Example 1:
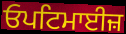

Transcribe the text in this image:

ਓਪਟਿਮਾਈਜ਼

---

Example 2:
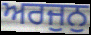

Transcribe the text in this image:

ਅਰਜੁਨੁ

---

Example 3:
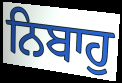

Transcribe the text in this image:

ਨਿਬਾਹੁ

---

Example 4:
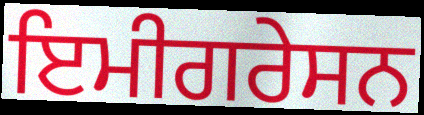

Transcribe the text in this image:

ਇਮੀਗਰੇਸਨ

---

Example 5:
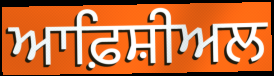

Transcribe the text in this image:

ਆਫ਼ਿਸ਼ੀਅਲ